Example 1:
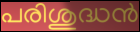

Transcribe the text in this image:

പരിശുദ്ധൻ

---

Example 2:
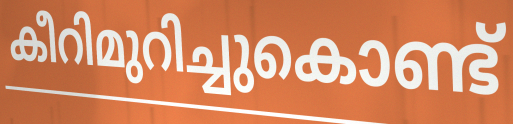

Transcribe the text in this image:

കീറിമുറിച്ചുകൊണ്ട്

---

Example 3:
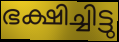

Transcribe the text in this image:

ഭക്ഷിച്ചിട്ടു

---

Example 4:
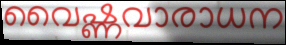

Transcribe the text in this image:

വൈഷ്ണവാരാധന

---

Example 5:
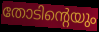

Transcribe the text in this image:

തോടിന്റെയും